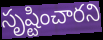
సృష్టించారని